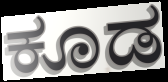
ಕೂಡ